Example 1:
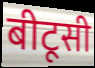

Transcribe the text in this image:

बीटूसी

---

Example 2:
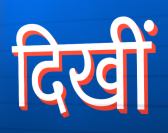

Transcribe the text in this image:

दिखीं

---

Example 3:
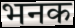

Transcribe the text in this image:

भनक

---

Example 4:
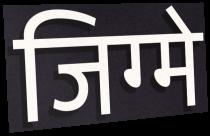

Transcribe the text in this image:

जिग्मे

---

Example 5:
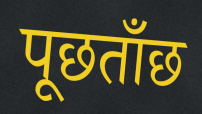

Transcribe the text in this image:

पूछताँछ